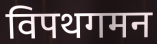
विपथगमन